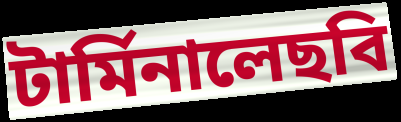
টার্মিনালেছবি